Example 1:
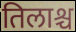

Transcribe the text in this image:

तिलाश्च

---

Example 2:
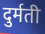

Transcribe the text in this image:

दुर्मती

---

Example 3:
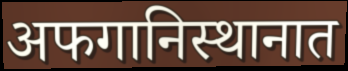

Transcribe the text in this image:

अफगानिस्थानात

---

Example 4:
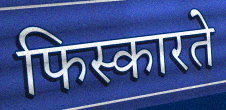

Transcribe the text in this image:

फिस्कारते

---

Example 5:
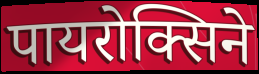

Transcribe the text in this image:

पायरोक्सिने